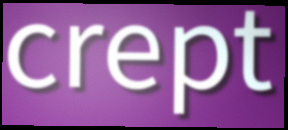
crept